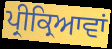
ਪ੍ਰੀਕ੍ਰਿਆਵਾਂ